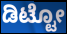
ಡಿಟ್ಟೋ